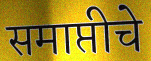
समाप्तीचे